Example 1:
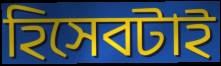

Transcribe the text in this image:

হিসেবটাই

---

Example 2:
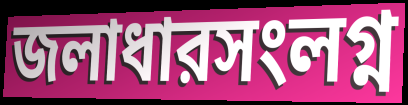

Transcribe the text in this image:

জলাধারসংলগ্ন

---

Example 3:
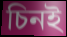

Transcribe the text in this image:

চিনই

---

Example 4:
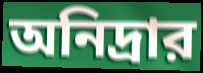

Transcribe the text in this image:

অনিদ্রার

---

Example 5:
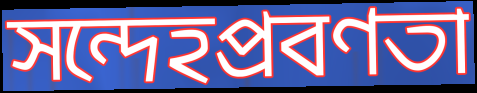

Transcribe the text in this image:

সন্দেহপ্রবণতা